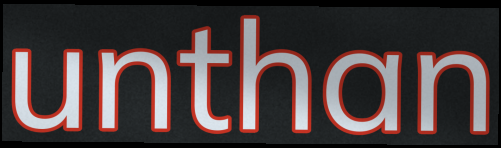
unthan